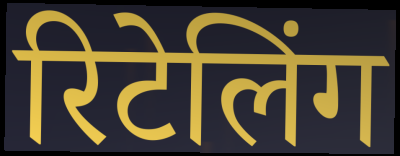
रिटेलिंग